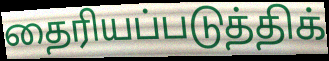
தைரியப்படுத்திக்